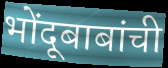
भोंदूबाबांची